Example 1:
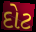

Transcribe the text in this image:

દોટ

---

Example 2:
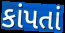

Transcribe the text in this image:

કાંપતાં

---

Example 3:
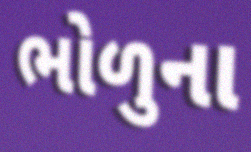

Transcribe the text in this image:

ભોળુના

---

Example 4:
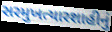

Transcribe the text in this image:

સરમુખત્યારશાહીનું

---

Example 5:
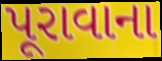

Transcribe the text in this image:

પૂરાવાના